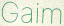
Gaim